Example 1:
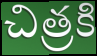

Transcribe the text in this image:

చిత్రకి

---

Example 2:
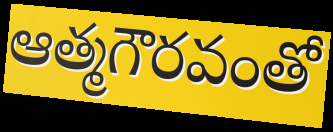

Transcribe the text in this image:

ఆత్మగౌరవంతో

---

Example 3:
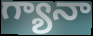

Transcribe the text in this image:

గ్యానా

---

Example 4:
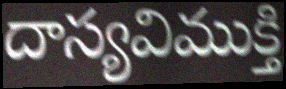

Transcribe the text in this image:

దాస్యవిముక్తి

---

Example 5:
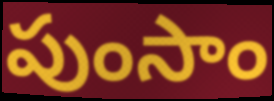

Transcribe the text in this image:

పుంసాం